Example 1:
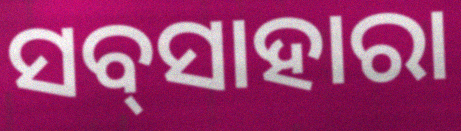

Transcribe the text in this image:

ସବ୍‌ସାହାରା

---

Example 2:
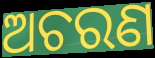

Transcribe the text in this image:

ଅଚରଣ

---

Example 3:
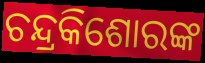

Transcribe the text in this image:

ଚନ୍ଦ୍ରକିଶୋରଙ୍କ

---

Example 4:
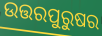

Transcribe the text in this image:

ଉତ୍ତରପୁରୁଷର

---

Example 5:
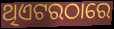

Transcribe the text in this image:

ଥିଏଟରଠାରେ